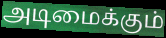
அடிமைக்கும்